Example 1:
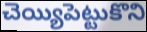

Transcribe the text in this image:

చెయ్యిపెట్టుకొని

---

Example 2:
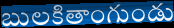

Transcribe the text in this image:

బులకితాంగుండు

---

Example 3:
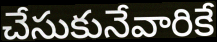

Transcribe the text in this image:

చేసుకునేవారికే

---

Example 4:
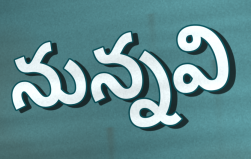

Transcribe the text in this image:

నున్నవి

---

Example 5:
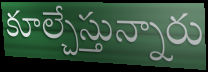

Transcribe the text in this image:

కూల్చేస్తున్నారు